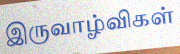
இருவாழ்விகள்